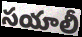
సయాలీ